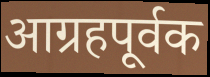
आग्रहपूर्वक